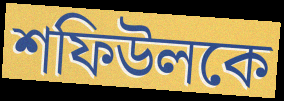
শফিউলকে